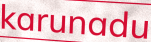
karunadu